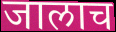
जालाच